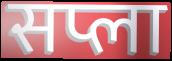
सप्ला